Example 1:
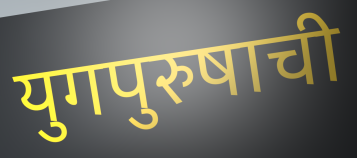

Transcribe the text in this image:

युगपुरुषाची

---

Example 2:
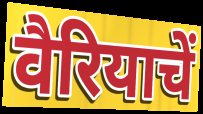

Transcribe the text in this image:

वैरियाचें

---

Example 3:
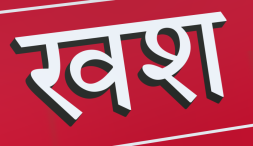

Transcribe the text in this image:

खश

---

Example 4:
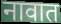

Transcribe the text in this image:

नावात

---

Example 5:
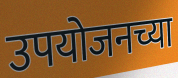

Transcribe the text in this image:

उपयोजनच्या